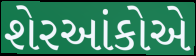
શેરઆંકોએ